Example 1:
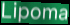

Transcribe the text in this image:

Lipoma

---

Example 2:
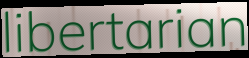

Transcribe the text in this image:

libertarian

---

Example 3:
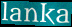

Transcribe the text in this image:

lanka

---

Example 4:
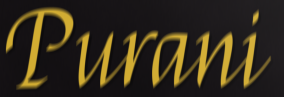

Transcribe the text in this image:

Purani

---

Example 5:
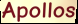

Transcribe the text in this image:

Apollos